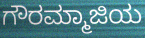
ಗೌರಮ್ಮಾಜಿಯ